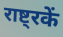
राष्ट्रकें